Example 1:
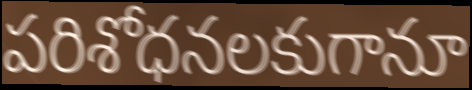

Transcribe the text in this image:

పరిశోధనలకుగానూ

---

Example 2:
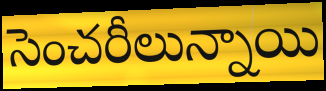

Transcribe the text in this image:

సెంచరీలున్నాయి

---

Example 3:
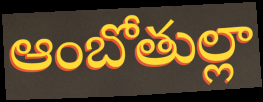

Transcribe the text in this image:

ఆంబోతుల్లా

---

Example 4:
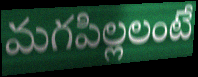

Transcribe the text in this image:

మగపిల్లలంటే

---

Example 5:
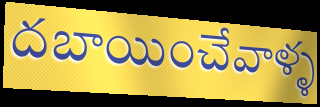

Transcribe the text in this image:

దబాయించేవాళ్ళ